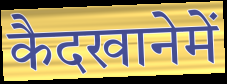
कैदखानेमें